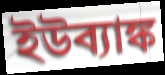
ইউব্যাঙ্ক